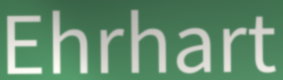
Ehrhart